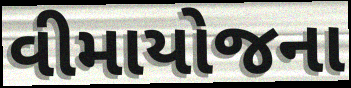
વીમાયોજના